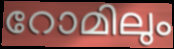
റോമിലും